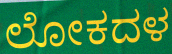
ಲೋಕದಳ